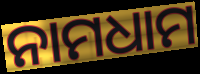
ନାମଧାମ